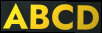
ABCD